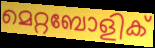
മെറ്റബോളിക്